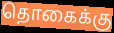
தொகைக்கு